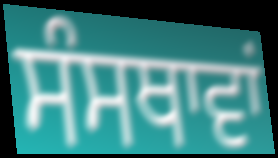
ਸੰਸਥਾਵਾਂ